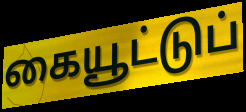
கையூட்டுப்